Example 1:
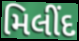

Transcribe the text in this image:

મિલીંદ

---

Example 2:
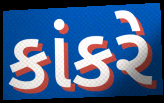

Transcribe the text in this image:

કાંકરે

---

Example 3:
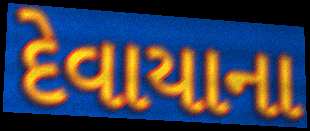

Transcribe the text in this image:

દેવાયાના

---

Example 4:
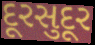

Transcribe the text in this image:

દૂરસુદૂર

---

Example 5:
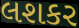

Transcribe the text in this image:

લશકર